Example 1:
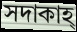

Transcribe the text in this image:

সদাকাহ্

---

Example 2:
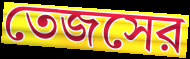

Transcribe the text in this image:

তেজসের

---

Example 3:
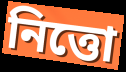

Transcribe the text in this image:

নিত্তো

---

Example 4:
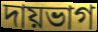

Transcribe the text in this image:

দায়ভাগ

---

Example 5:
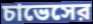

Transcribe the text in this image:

চাভেসের